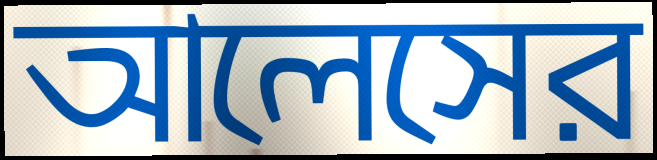
আলেসের